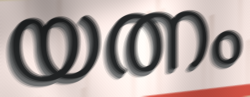
യത്നം